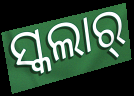
ସ୍କଲାର୍